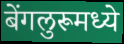
बेंगलुरूमध्ये